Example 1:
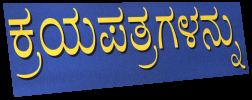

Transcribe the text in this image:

ಕ್ರಯಪತ್ರಗಳನ್ನು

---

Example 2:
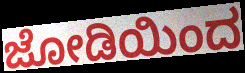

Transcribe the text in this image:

ಜೋಡಿಯಿಂದ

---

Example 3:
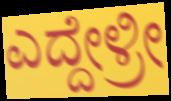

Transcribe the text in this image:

ಎದ್ದೇಳ್ರೀ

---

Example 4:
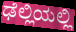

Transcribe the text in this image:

ಢೆಲ್ಲಿಯಲ್ಲಿ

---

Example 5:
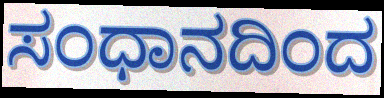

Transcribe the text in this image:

ಸಂಧಾನದಿಂದ